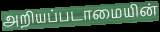
அறியப்படாமையின்